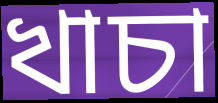
খাচা